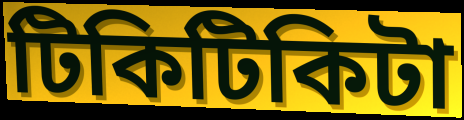
টিকিটিকিটা